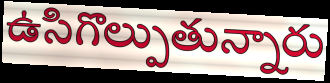
ఉసిగొల్పుతున్నారు